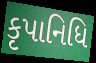
કૃપાનિધિ